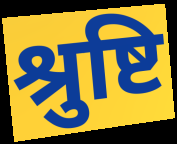
श्रुष्टि